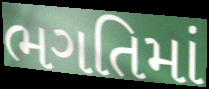
ભગતિમાં